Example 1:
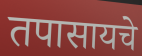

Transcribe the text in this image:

तपासायचे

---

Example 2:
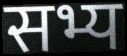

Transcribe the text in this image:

सभ्य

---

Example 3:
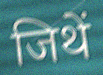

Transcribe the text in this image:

जिथें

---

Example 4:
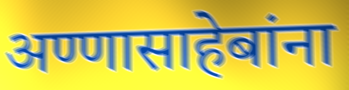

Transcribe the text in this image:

अण्णासाहेबांना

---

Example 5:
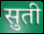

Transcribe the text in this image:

सुती